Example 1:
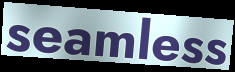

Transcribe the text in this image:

seamless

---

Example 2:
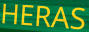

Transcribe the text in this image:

HERAS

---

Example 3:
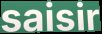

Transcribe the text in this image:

saisir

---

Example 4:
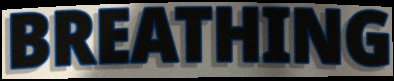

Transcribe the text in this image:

BREATHING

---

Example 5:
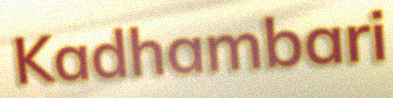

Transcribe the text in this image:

Kadhambari